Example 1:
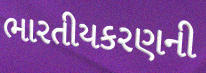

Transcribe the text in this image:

ભારતીયકરણની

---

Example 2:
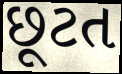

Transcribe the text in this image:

છૂટત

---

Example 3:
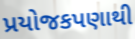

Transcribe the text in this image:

પ્રયોજકપણાથી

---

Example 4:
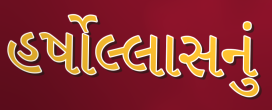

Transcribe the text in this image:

હર્ષોલ્લાસનું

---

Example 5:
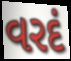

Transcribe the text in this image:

વરદં